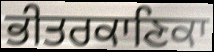
ਭੀਤਰਕਾਣਿਕਾ